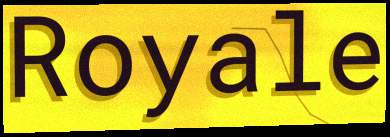
Royale